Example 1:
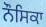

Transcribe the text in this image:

ਨੌਸਿਕਾ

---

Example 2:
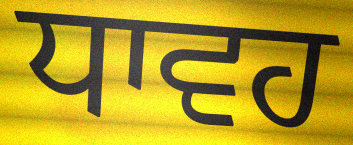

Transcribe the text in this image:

ਧਾਵਹ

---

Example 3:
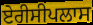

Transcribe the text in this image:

ਏਰੀਸੀਪਲਾਸ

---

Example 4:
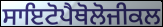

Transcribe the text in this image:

ਸਾਇਟੋਪੈਥੋਲੋਜੀਕਲ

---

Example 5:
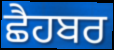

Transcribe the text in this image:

ਛੈਹਬਰ